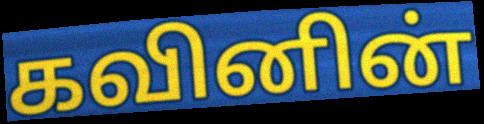
கவினின்